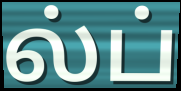
ல்ப்